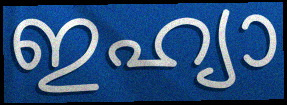
ഇഹ്യാ